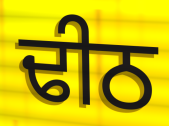
ਢੀਠ